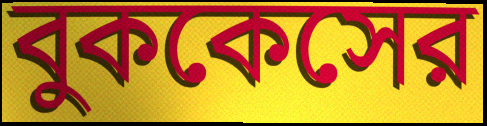
বুককেসের